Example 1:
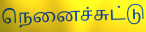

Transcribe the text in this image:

நெனைச்சுட்டு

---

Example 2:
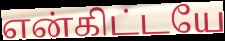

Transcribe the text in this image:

என்கிட்டயே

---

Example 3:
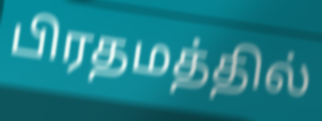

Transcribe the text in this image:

பிரதமத்தில்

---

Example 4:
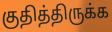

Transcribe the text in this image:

குதித்திருக்க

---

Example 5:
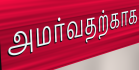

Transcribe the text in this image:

அமர்வதற்காக